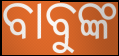
ବାବୁଙ୍କ